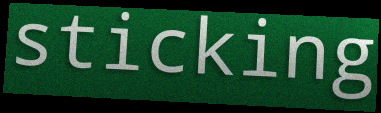
sticking